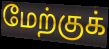
மேற்குக்